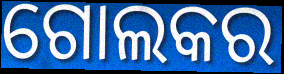
ଗୋଲକର